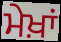
ਮੇਖ਼ਾਂ